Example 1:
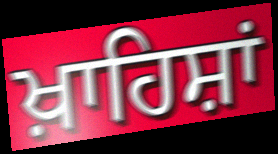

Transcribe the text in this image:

ਖ਼ਾਹਿਸ਼ਾਂ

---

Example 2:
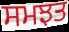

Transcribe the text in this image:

ਸਮਝਤ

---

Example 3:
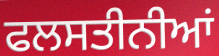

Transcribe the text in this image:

ਫਲਸਤੀਨੀਆਂ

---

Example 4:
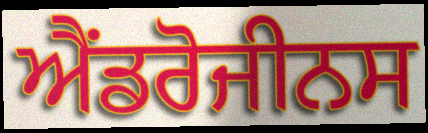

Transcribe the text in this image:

ਐਂਡਰੋਜੀਨਸ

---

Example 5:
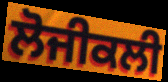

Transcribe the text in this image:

ਲੋਜੀਕਲੀ